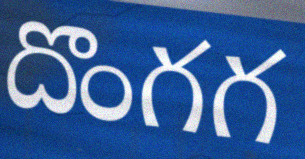
దొంగగ